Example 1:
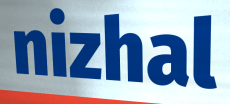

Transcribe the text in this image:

nizhal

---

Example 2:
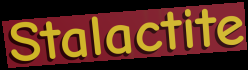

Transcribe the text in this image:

Stalactite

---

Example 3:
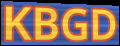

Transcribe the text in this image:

KBGD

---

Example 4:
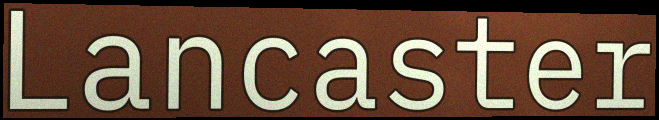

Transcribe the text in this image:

Lancaster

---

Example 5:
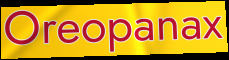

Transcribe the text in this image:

Oreopanax